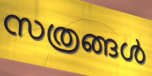
സത്രങ്ങൾ